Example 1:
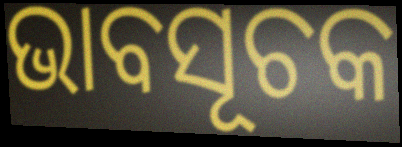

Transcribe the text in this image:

ଭାବସୂଚକ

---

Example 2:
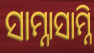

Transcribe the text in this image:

ସାମ୍ନାସାମ୍ନି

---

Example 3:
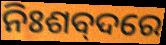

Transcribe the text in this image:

ନିଃଶବ୍‌ଦରେ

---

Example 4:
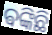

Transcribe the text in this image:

ଵଙ୍କିଛି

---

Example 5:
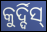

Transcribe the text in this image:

କୁର୍ଦ୍ଦିସ୍